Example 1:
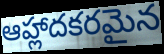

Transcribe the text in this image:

ఆహ్లాదకరమైన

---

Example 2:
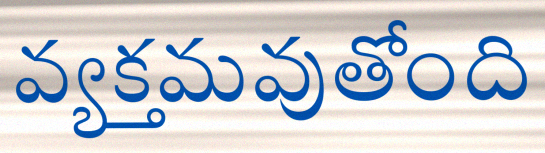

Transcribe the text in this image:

వ్యక్తమవుతోంది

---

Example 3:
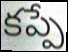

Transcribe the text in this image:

కప్పే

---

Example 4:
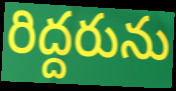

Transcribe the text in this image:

రిద్దరును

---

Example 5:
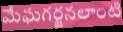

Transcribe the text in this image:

మేఘగర్జనలాంటి